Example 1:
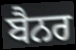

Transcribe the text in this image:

ਬੈਨਰ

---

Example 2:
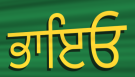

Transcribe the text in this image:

ਭਾਇਓ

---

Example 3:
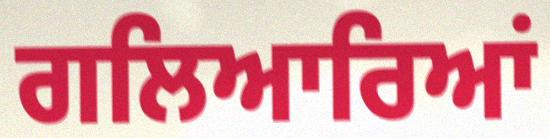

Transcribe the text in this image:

ਗਲਿਆਰਿਆਂ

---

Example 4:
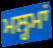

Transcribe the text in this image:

ਮਲ੍ਹਮਾਂ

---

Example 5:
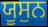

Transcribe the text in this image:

ਯੂਸੁਨ